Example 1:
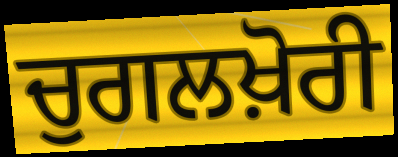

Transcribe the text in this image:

ਚੁਗਲਖ਼ੋਰੀ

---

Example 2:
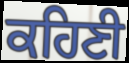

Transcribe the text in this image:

ਕਹਿਣੀ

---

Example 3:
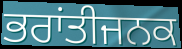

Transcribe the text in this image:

ਭਰਾਂਤੀਜਨਕ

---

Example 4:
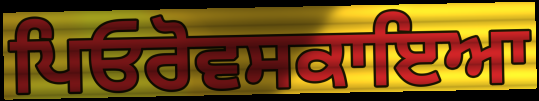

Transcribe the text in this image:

ਪਿਓਰੋਵਸਕਾਇਆ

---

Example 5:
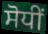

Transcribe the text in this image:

ਸੋਧੀਂ